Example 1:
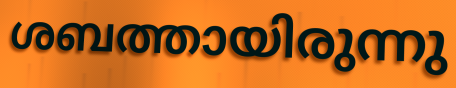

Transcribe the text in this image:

ശബത്തായിരുന്നു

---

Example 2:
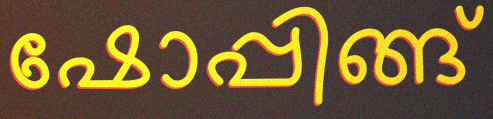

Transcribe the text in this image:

ഷോപ്പിങ്ങ്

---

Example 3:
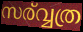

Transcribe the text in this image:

സര്വ്വത്ര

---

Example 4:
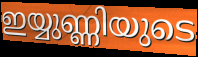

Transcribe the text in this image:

ഇയ്യുണ്ണിയുടെ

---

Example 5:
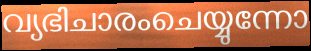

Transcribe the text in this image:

വ്യഭിചാരംചെയ്യുന്നോ